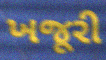
ખજૂરી